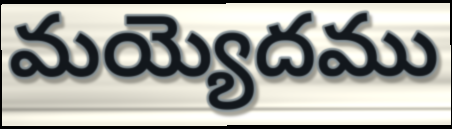
మయ్యెదము